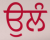
ਉਲੰ